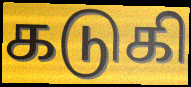
கடுகி